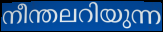
നീന്തലറിയുന്ന